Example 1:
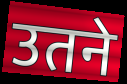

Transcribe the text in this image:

उतने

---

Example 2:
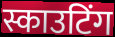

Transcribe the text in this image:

स्काउटिंग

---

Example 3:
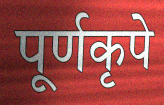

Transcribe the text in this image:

पूर्णकृपे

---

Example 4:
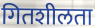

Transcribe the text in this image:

गितशीलता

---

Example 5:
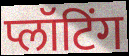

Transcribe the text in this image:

प्लॉटिंग